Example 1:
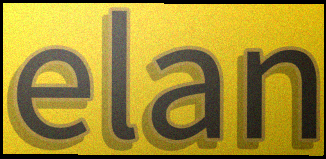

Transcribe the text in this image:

elan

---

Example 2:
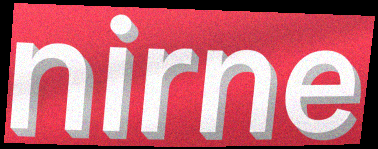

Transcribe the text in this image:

nirne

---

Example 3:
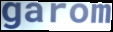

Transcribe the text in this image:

garom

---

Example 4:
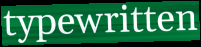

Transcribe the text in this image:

typewritten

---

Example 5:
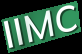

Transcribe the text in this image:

IIMC